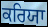
ਕਰਿਯਾ